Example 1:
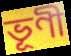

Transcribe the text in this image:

ভূণী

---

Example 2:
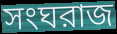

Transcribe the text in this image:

সংঘরাজ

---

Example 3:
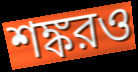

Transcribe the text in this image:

শঙ্করও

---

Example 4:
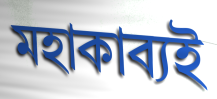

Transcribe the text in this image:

মহাকাব্যই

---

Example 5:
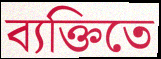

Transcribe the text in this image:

ব্যক্তিতে